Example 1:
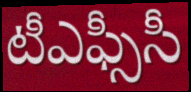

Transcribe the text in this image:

టీఎఫ్సీసీ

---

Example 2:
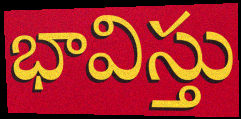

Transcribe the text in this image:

భావిస్తు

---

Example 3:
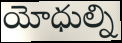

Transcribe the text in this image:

యోధుల్ని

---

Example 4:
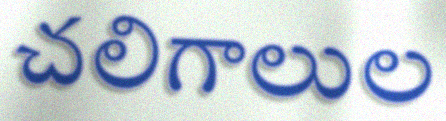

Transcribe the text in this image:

చలిగాలుల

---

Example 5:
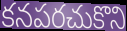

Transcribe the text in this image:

కనపరచుకొని